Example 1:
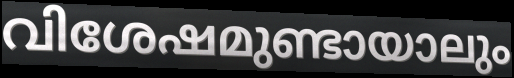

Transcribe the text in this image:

വിശേഷമുണ്ടായാലും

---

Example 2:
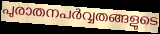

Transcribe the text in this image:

പുരാതനപർവ്വതങ്ങളുടെ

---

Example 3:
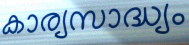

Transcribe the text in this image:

കാര്യസാദ്ധ്യം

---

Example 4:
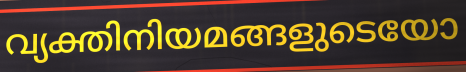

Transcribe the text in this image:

വ്യക്തിനിയമങ്ങളുടെയോ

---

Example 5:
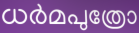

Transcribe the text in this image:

ധർമപുത്രോ